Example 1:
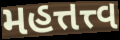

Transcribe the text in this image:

મહત્તત્ત્વ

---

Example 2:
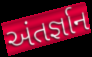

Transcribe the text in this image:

અંતર્જ્ઞાન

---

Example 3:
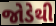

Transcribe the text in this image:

જોડેથી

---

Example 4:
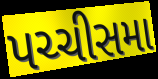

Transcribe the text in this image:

પચ્ચીસમા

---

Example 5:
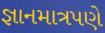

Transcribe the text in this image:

જ્ઞાનમાત્રપણે